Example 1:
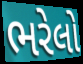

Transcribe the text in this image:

ભરેલો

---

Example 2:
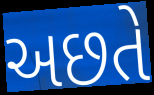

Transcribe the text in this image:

અછતે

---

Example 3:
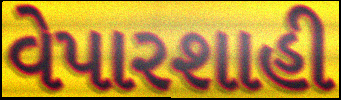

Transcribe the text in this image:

વેપારશાહી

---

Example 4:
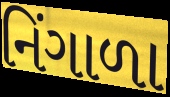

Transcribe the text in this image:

નિંગાળા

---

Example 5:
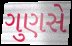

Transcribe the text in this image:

ગુણસે